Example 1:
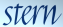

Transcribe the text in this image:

stern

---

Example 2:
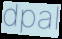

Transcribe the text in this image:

dpal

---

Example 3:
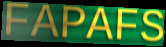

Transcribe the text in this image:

FAPAFS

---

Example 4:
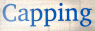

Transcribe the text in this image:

Capping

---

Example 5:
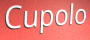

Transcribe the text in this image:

Cupolo